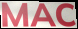
MAC